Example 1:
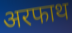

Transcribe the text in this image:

अरफाथ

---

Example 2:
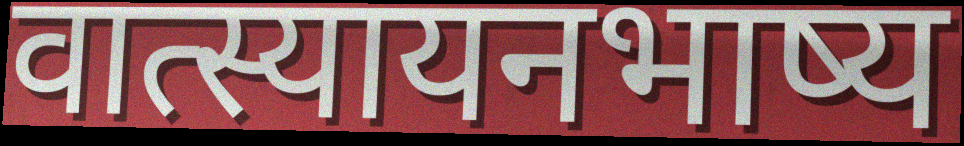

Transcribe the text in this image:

वात्स्यायनभाष्य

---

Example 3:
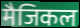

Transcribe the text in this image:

मैजिकल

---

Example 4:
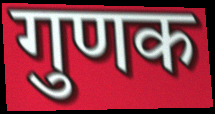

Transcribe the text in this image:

गुणक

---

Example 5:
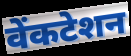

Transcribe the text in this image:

वेंकटेशन